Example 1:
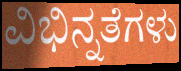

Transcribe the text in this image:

ವಿಭಿನ್ನತೆಗಳು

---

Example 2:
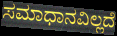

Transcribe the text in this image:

ಸಮಾಧಾನವಿಲ್ಲದೆ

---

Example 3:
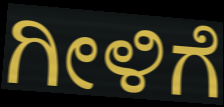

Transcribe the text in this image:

ಗೀಳಿಗೆ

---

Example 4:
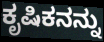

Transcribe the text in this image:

ಕೃಷಿಕನನ್ನು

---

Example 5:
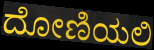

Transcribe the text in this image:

ದೋಣಿಯಲಿ